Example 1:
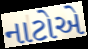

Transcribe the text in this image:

નાટોએ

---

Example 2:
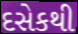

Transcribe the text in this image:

દસેકથી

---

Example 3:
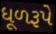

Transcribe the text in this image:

ધૂળરૂપે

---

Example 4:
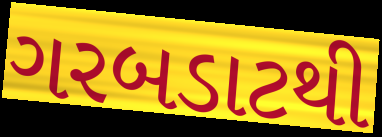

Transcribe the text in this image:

ગરબડાટથી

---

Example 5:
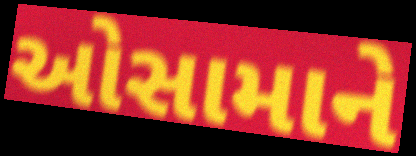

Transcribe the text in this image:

ઓસામાને